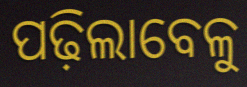
ପଢ଼ିଲାବେଳୁ